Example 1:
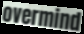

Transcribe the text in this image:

overmind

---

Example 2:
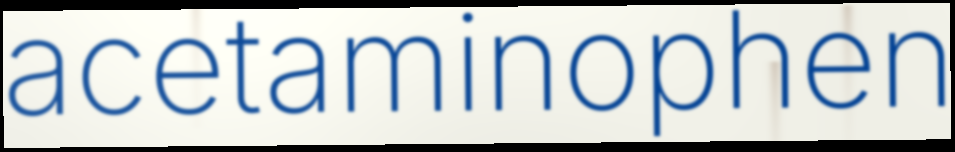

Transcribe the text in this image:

acetaminophen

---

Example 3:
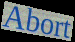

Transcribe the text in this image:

Abort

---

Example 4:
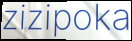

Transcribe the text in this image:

zizipoka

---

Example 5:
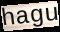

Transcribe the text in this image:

hagu